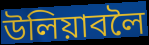
উলিয়াবলৈ